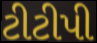
ટીટીપી